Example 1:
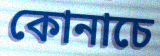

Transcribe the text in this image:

কোনাচে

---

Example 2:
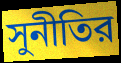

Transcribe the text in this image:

সুনীতির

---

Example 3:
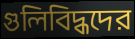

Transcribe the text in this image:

গুলিবিদ্ধদের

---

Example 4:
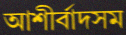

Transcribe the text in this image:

আশীর্বাদসম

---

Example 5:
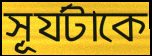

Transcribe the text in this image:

সূর্যটাকে